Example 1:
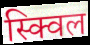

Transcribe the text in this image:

स्क्विल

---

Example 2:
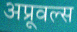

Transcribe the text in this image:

अप्रूवल्स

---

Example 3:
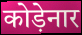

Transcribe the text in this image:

कोड़ेनार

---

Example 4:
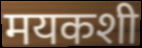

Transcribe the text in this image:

मयकशी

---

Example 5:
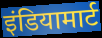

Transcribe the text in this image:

इंडियामार्ट